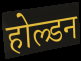
होल्डन